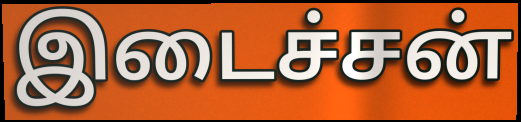
இடைச்சன்